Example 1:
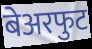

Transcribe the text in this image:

बेअरफुट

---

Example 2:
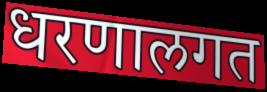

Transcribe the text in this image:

धरणालगत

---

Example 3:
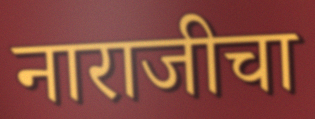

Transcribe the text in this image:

नाराजीचा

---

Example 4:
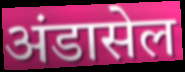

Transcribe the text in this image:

अंडासेल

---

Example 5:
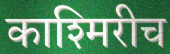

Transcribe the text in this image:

काश्मिरीच